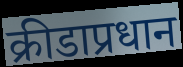
क्रीडाप्रधान